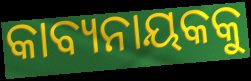
କାବ୍ୟନାୟକକୁ